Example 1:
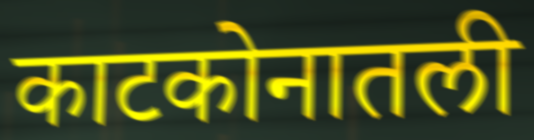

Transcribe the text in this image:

काटकोनातली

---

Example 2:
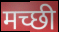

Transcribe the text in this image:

मच्छी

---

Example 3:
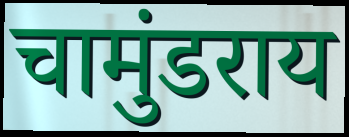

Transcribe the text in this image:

चामुंडराय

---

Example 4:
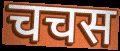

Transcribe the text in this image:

चचस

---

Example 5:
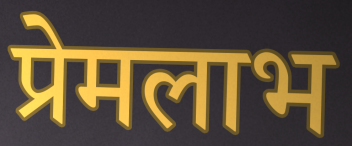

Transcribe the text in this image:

प्रेमलाभ